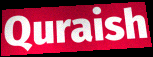
Quraish